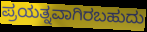
ಪ್ರಯತ್ನವಾಗಿರಬಹುದು